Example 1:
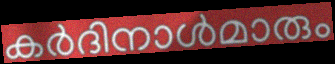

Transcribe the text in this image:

കർദിനാൾമാരും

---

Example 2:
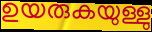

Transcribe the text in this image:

ഉയരുകയുള്ളു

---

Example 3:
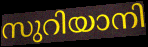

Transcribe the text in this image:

സുറിയാനി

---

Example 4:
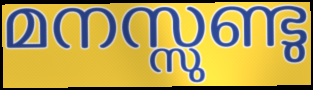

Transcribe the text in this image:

മനസ്സുണ്ടു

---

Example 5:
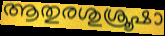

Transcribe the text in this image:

ആതുരശുശ്രൂഷാ